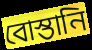
বোস্তানি